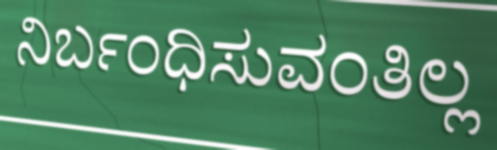
ನಿರ್ಬಂಧಿಸುವಂತಿಲ್ಲ